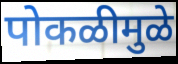
पोकळीमुळे